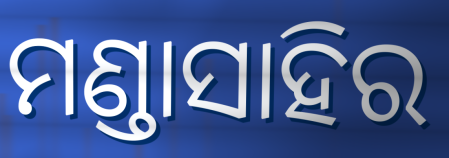
ମଣ୍ଡାସାହିର